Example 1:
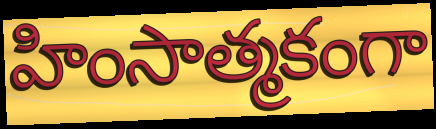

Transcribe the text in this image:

హింసాత్మకంగా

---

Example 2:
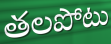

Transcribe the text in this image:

తలపోటు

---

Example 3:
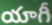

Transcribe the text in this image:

యాగీ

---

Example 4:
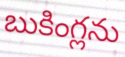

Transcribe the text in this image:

బుకింగ్లను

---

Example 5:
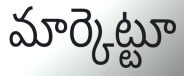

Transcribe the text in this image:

మార్కెట్టూ